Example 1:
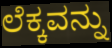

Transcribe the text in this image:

ಲೆಕ್ಕವನ್ನು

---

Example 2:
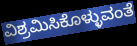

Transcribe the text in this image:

ವಿಶ್ರಮಿಸಿಕೊಳ್ಳುವಂತೆ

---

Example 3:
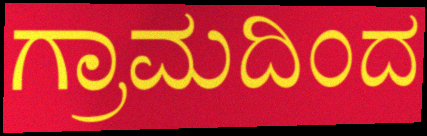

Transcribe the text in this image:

ಗ್ರಾಮದಿಂದ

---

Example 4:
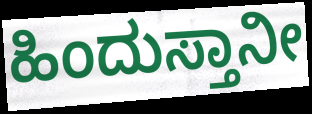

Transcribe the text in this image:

ಹಿಂದುಸ್ತಾನೀ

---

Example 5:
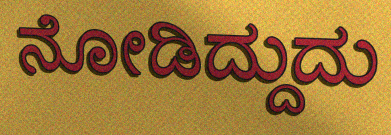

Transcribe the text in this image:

ನೋಡಿದ್ದುದು